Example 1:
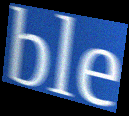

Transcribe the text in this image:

ble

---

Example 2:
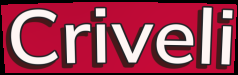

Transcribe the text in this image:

Criveli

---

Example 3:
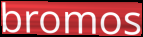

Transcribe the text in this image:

bromos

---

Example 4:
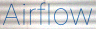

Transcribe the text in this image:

Airflow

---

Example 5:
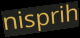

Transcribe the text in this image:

nisprih